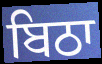
ਬਿਠਾ